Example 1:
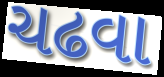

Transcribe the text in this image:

ચઢવા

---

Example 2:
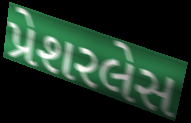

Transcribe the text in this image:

પ્રેશરલેસ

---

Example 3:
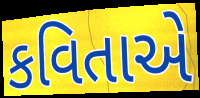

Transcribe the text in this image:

કવિતાએ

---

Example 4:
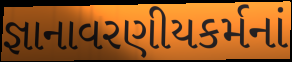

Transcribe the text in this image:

જ્ઞાનાવરણીયકર્મનાં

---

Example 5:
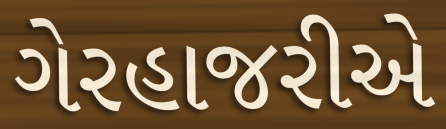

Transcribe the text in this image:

ગેરહાજરીએ